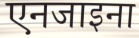
एनजाइना